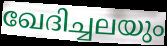
ഖേദിച്ചലയും